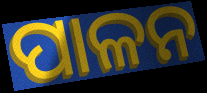
ପାଳନ